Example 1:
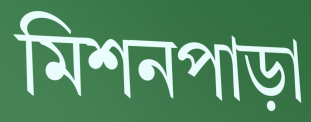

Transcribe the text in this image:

মিশনপাড়া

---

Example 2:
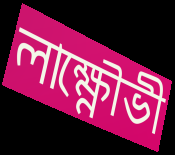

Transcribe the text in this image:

লাক্ষ্ণৌভী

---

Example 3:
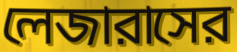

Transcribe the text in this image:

লেজারাসের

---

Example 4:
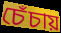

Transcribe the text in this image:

চেঁচায়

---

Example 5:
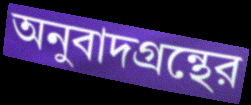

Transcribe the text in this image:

অনুবাদগ্রন্থের